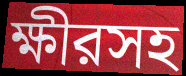
ক্ষীরসহ